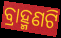
ବ୍ରାହ୍ମଣଟି